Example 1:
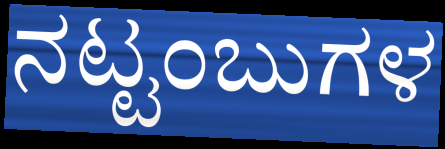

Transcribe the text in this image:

ನಟ್ಟಂಬುಗಳ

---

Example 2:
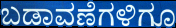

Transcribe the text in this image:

ಬಡಾವಣೆಗಳಿಗೂ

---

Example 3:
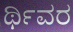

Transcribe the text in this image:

ರ್ಥಿವರ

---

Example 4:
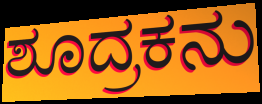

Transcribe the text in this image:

ಶೂದ್ರಕನು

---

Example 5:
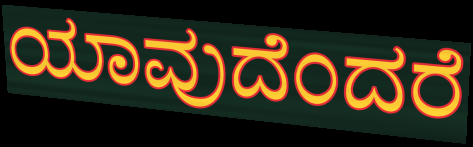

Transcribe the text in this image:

ಯಾವುದೆಂದರೆ